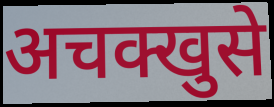
अचक्खुसे